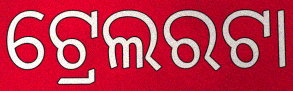
ଟ୍ରେଲରଟା